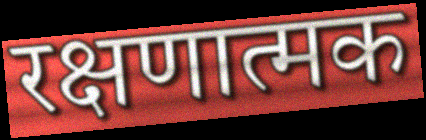
रक्षणात्मक